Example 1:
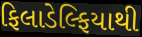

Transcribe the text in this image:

ફિલાડેલ્ફિયાથી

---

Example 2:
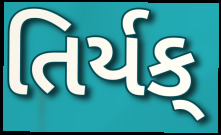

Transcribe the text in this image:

તિર્યક્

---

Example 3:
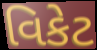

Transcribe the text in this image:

વિકેટ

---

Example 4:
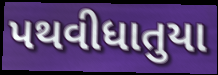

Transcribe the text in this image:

પથવીધાતુયા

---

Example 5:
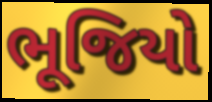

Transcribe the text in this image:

ભૂજિયો